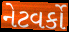
નેટવર્કો